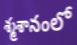
శ్మశానంలో